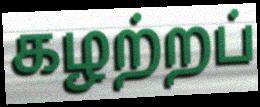
கழற்றப்